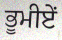
ਭੂਮੀਏਂ